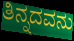
ತಿನ್ನದವನು